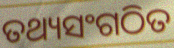
ତଥ୍ୟସଂଗଠିତ